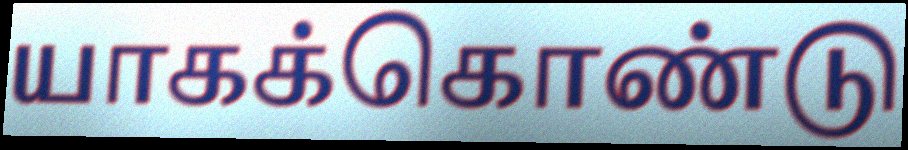
யாகக்கொண்டு